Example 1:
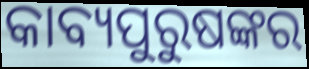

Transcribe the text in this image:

କାବ୍ୟପୁରୁଷଙ୍କର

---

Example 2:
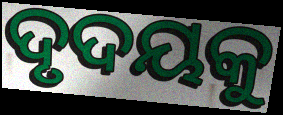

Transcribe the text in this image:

ଦୃଦୟକୁ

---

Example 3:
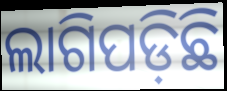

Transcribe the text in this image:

ଲାଗିପଡ଼ିଛି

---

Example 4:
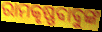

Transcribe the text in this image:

ରାମକୃଷ୍ଣବାବୁଙ୍କ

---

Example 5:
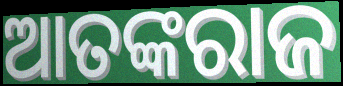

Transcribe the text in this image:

ଆତଙ୍କରାଜ